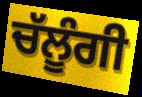
ਚੱਲੂੰਗੀ